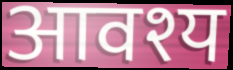
आवश्य